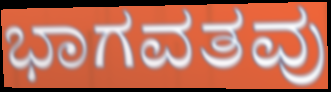
ಭಾಗವತವು